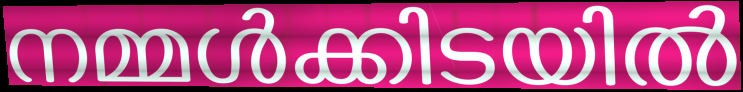
നമ്മൾക്കിടയിൽ